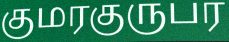
குமரகுருபர